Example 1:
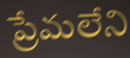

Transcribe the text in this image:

ప్రేమలేని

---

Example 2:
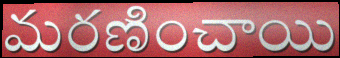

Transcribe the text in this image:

మరణించాయి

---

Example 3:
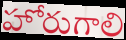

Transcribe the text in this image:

హోరుగాలి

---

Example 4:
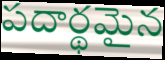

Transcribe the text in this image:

పదార్థమైన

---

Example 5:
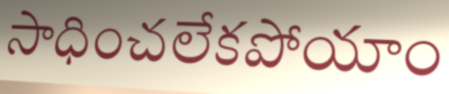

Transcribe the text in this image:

సాధించలేకపోయాం